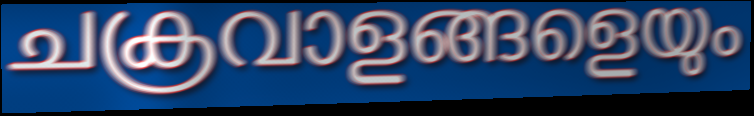
ചക്രവാളങ്ങളെയും